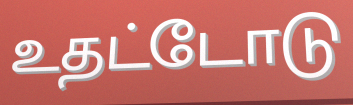
உதட்டோடு